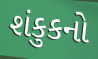
શંકુકનો